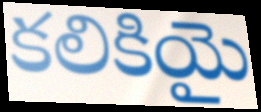
కలికియై